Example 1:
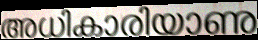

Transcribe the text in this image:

അധികാരിയാണു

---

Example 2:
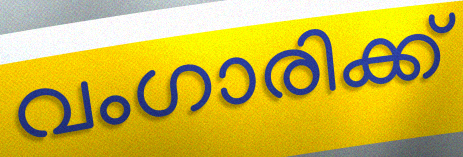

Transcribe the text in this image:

വംഗാരിക്ക്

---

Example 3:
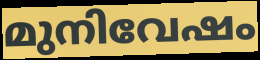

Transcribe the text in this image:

മുനിവേഷം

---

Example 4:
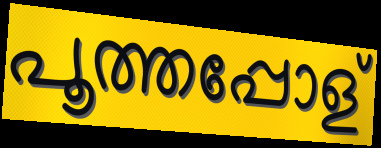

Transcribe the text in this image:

പൂത്തപ്പോള്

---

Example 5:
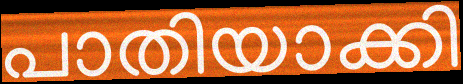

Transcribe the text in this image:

പാതിയാക്കി